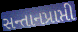
સન્તાનપ્રાપ્તી